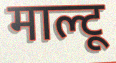
माल्टू